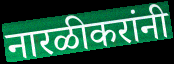
नारळीकरांनी